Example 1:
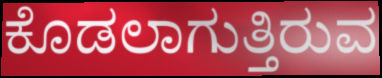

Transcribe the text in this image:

ಕೊಡಲಾಗುತ್ತಿರುವ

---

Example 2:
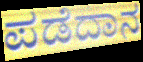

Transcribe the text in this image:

ಪಡೆದಾನ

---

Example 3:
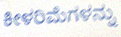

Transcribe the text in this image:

ಕೀಳರಿಮೆಗಳನ್ನು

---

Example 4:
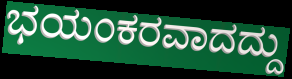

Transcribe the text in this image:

ಭಯಂಕರವಾದದ್ದು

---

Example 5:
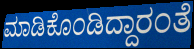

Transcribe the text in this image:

ಮಾಡಿಕೊಂಡಿದ್ದಾರಂತೆ